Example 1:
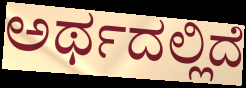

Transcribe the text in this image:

ಅರ್ಥದಲ್ಲಿದೆ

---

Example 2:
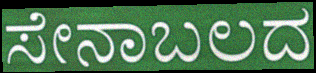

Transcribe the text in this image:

ಸೇನಾಬಲದ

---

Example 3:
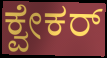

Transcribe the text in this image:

ಕ್ವೇಕರ್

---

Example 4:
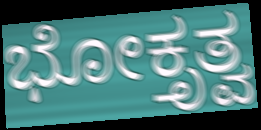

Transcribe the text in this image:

ಭೋಕ್ತೃತ್ವ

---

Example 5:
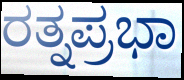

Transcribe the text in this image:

ರತ್ನಪ್ರಭಾ